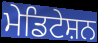
ਮੇਡਿਟੇਸ਼ਨ